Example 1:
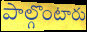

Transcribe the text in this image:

పాల్గొంటారు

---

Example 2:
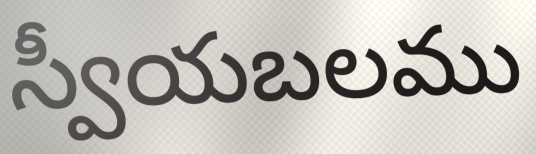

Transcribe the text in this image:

స్వీయబలము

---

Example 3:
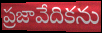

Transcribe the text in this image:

ప్రజావేదికను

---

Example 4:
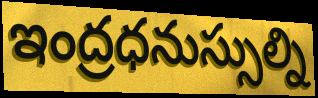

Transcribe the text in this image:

ఇంద్రధనుస్సుల్ని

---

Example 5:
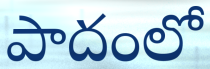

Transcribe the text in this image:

పాదంలో